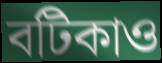
বটিকাও